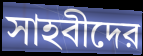
সাহবীদের